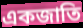
একজাতি